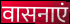
वासनाएं